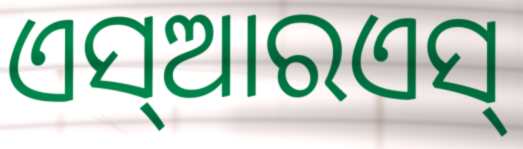
ଏସ୍ଆରଏସ୍